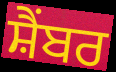
ਸ਼ੈਂਬਰ